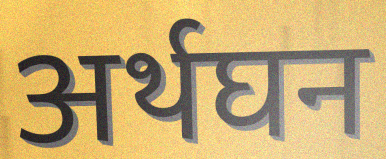
अर्थघन